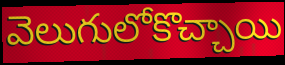
వెలుగులోకొచ్చాయి